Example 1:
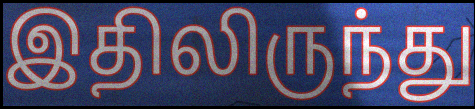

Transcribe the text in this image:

இதிலிருந்து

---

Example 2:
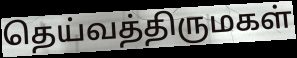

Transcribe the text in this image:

தெய்வத்திருமகள்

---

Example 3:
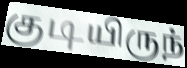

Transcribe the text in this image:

குடியிருந்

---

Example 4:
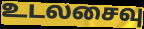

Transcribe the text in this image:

உடலசைவு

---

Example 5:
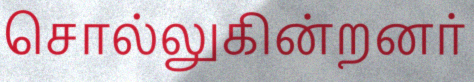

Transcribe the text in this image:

சொல்லுகின்றனர்